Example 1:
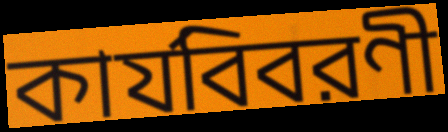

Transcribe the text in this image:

কার্যবিবরণী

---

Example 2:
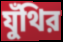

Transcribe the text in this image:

যুঁথির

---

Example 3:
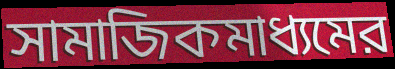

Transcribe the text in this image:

সামাজিকমাধ্যমের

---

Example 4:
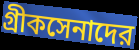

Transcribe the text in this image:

গ্রীকসেনাদের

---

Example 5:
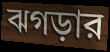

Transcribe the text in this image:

ঝগড়ার